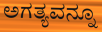
ಅಗತ್ಯವನ್ನೂ